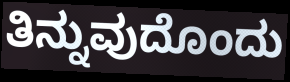
ತಿನ್ನುವುದೊಂದು